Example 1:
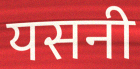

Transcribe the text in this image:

यसनी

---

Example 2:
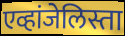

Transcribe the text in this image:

एव्हांजेलिस्ता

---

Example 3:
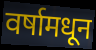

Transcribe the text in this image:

वर्षामधून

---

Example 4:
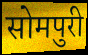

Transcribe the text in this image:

सोमपुरी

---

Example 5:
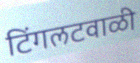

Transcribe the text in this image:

टिंगलटवाळी